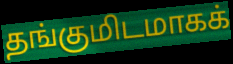
தங்குமிடமாகக்